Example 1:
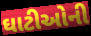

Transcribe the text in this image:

ઘાટીઓની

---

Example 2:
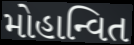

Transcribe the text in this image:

મોહાન્વિત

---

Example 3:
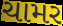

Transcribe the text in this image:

ચામર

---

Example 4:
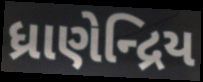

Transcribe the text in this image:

ધ્રાણેન્દ્રિય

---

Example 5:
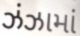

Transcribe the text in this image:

ઝંઝામાં